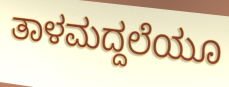
ತಾಳಮದ್ದಲೆಯೂ